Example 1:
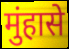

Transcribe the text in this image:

मुंहासे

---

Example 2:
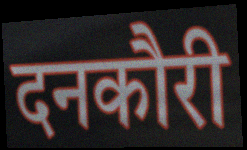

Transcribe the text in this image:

दनकौरी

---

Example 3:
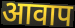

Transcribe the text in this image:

आवाप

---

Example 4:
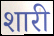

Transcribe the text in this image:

शारी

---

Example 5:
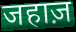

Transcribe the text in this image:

जहाज़